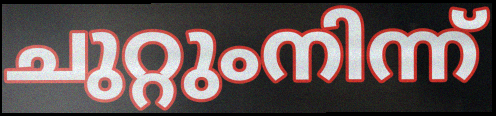
ചുറ്റുംനിന്ന്